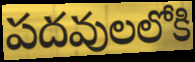
పదవులలోకి